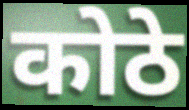
कोठे